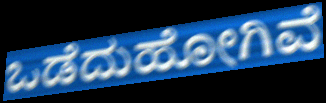
ಒಡೆದುಹೋಗಿವೆ